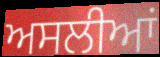
ਅਸਲੀਆਂ